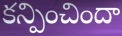
కన్పించిందా